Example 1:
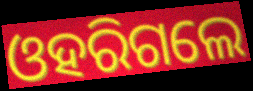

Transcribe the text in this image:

ଓହରିଗଲେ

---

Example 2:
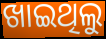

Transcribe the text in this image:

ଖାଇଥିଲୁ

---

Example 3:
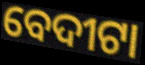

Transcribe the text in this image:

ବେଦୀଟା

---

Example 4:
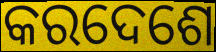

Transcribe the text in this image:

କରଦେଶେ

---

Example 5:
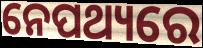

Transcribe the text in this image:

ନେପଥ୍ୟରେ